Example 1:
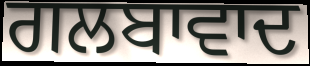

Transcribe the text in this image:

ਗਲਬਾਵਾਦ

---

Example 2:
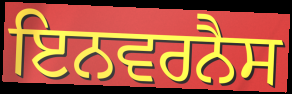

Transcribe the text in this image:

ਇਨਵਰਨੈਸ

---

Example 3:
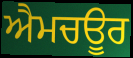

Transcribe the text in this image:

ਐਮਚਊਰ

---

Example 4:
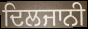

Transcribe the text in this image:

ਦਿਲਜਾਨੀ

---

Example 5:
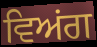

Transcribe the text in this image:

ਵਿਅਂਗ